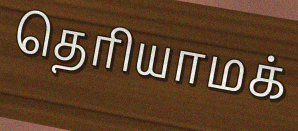
தெரியாமக்